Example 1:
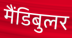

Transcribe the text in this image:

मैंडिबुलर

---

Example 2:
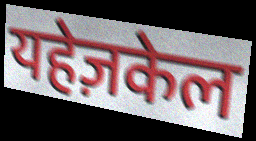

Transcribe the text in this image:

यहेज़केल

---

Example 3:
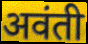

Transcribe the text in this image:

अवंती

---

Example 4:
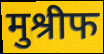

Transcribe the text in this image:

मुश्रीफ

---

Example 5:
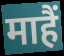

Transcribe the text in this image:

माहैं